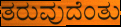
ತರುವುದೆಂತು